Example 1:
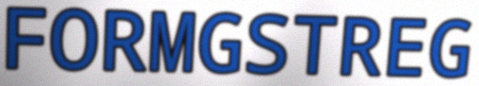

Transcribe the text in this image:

FORMGSTREG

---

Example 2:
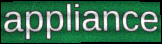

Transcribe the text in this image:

appliance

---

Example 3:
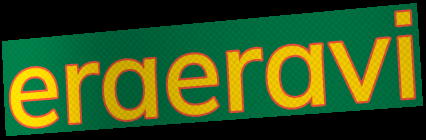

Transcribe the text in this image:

eraeravi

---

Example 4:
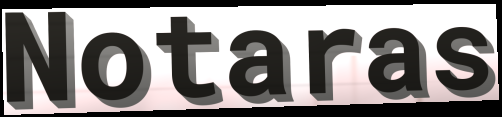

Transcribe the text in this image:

Notaras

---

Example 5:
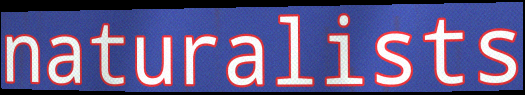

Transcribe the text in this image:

naturalists